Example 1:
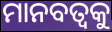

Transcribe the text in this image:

ମାନବତ୍ବକୁ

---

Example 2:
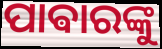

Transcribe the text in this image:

ପାଵାରଙ୍କୁ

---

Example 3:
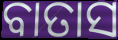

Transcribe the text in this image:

ବାତାସ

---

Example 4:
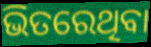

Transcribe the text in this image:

ଭିତରେଥିବା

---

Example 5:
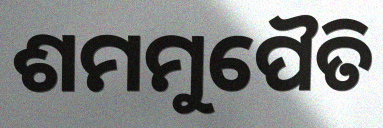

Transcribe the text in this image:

ଶମମୁପୈତି